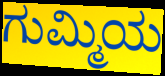
ಗುಮ್ಮಿಯ